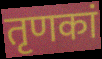
तृणकां